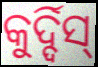
କୁର୍ଦ୍ଦିସ୍